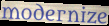
modernize